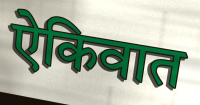
ऐकिवात